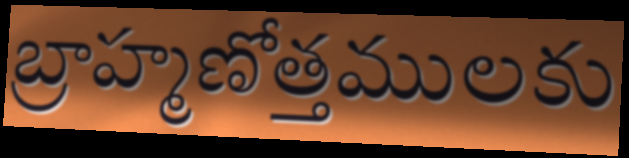
బ్రాహ్మణోత్తములకు